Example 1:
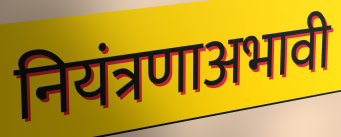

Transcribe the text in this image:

नियंत्रणाअभावी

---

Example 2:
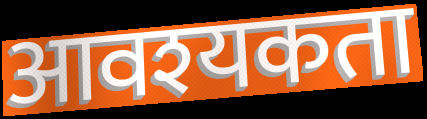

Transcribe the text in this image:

आवश्‍यकता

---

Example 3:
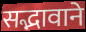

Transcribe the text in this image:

सद्भावाने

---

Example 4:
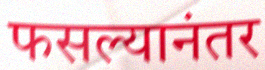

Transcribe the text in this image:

फसल्यानंतर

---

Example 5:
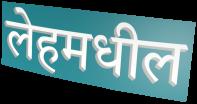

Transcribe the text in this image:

लेहमधील